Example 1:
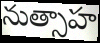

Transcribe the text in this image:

నుత్సాహ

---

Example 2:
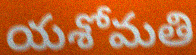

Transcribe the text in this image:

యశోమతి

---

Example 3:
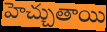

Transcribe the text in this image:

హెచ్చుతాయి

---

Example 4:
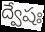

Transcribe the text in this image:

ద్వేషః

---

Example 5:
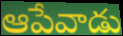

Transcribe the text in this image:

ఆపేవాడు